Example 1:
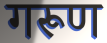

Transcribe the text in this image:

गरूण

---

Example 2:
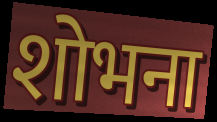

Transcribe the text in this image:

शोभना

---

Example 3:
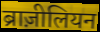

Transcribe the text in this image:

ब्राज़ीलियन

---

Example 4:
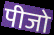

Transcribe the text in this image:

पीजो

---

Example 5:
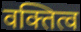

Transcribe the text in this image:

वक्तित्व